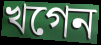
খগেন